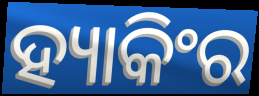
ହ୍ୟାକିଂର